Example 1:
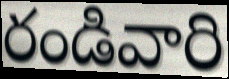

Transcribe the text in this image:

రండివారి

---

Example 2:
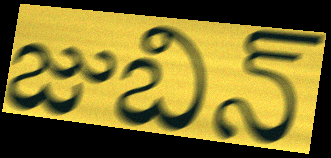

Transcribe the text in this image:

జుబిన్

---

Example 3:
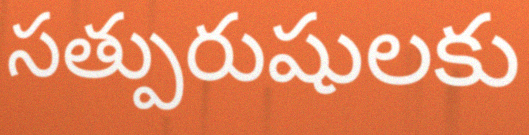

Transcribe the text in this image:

సత్పురుషులకు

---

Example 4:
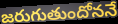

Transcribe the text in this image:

జరుగుతుందోననే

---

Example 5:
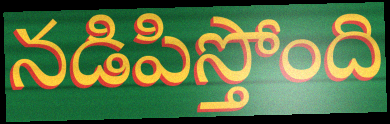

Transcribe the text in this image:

నడిపిస్తోంది